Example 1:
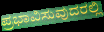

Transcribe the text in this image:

ಪ್ರಭಾವಿಸುವುದರಲ್ಲಿ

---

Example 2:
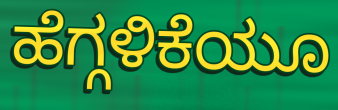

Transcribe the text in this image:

ಹೆಗ್ಗಳಿಕೆಯೂ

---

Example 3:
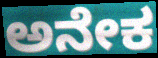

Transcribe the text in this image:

ಅನೇಕ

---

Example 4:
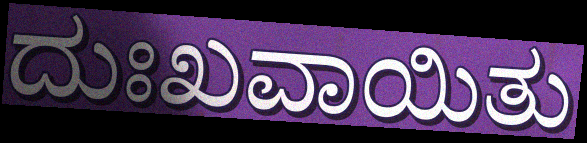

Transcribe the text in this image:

ದುಃಖವಾಯಿತು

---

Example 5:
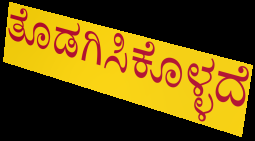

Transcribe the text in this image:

ತೊಡಗಿಸಿಕೊಳ್ಳದೆ